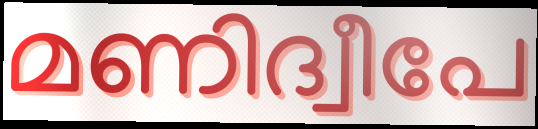
മണിദ്വീപേ